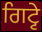
ਗਿਟ੍ਟੇ